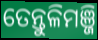
ତେନ୍ତୁଳିମଞ୍ଜି